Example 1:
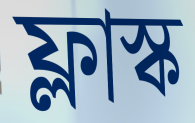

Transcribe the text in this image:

ফ্লাস্ক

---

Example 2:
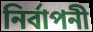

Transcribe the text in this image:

নির্বাপনী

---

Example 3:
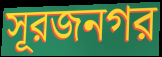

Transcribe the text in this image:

সূরজনগর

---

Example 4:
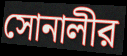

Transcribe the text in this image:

সোনালীর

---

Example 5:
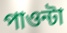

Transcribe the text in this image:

পাওন্টা